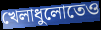
খেলাধুলোতেও